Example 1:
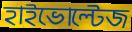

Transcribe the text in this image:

হাইভোল্টেজ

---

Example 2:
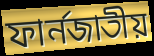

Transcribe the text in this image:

ফার্নজাতীয়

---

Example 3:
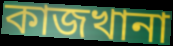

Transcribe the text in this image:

কাজখানা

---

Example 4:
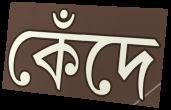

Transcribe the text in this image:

কেঁদে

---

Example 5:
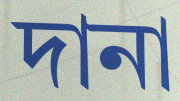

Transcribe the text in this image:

দানা